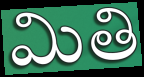
మితి